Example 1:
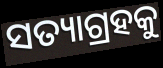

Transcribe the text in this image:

ସତ୍ୟାଗ୍ରହକୁ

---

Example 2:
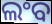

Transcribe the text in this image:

ଲଂବ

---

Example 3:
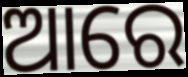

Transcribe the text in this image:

ଆରେ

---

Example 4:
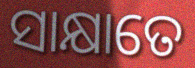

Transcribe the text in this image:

ସାକ୍ଷାତେ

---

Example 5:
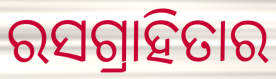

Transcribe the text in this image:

ରସଗ୍ରାହିତାର